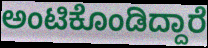
ಅಂಟಿಕೊಂಡಿದ್ದಾರೆ